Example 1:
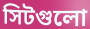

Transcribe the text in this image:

সিটগুলো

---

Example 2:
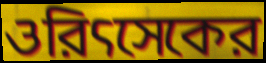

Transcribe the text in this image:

ওরিৎসেকের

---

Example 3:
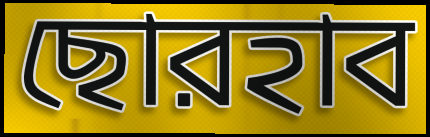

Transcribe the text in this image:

ছোরহাব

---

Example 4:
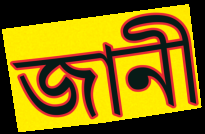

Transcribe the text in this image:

জানী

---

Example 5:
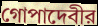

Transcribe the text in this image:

গোপাদেবীর